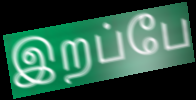
இறப்பே